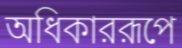
অধিকাররূপে